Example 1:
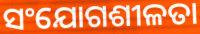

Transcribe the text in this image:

ସଂଯୋଗଶୀଳତା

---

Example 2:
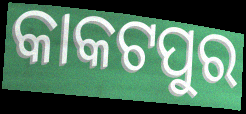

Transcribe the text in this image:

କାକଟପୁର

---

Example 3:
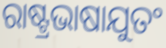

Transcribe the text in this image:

ରାଷ୍ଟ୍ରଭାଷାଯୁତଂ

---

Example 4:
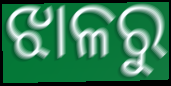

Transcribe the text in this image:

ଝାଳରୁ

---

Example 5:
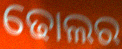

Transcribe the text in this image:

ଢୋଲର